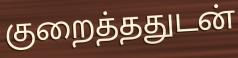
குறைத்ததுடன்